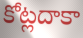
కోట్లదాకా